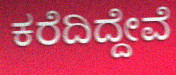
ಕರೆದಿದ್ದೇವೆ